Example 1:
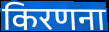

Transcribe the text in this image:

किरणना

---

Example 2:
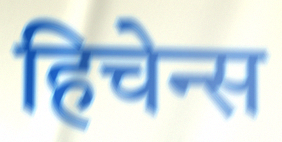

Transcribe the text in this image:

हिचेन्स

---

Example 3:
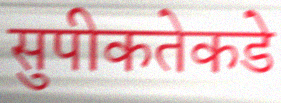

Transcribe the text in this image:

सुपीकतेकडे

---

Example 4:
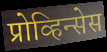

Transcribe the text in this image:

प्रोव्हिन्सेस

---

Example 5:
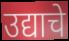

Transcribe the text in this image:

उद्याचे